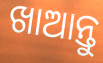
ଖାଆନ୍ତୁ